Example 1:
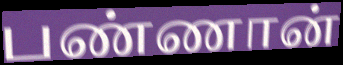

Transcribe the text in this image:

பண்ணான்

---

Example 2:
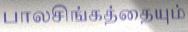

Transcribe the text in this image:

பாலசிங்கத்தையும்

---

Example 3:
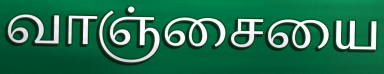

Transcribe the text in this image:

வாஞ்சையை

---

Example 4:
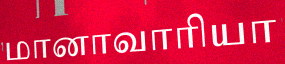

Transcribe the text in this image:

மானாவாரியா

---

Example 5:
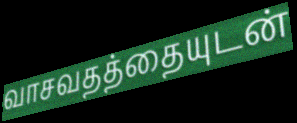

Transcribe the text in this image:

வாசவதத்தையுடன்